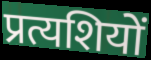
प्रत्यशियों